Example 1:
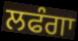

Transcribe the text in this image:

ਲਫੰਗਾ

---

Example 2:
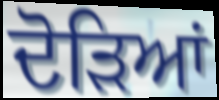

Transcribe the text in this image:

ਦੋੜਿਆਂ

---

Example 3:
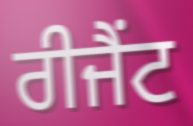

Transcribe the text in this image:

ਰੀਜੈਂਟ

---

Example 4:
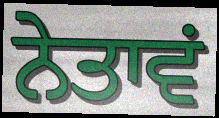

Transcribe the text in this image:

ਨੇਤਾਵਂ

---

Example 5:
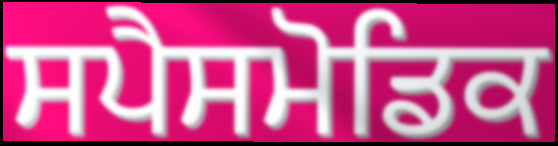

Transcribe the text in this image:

ਸਪੈਸਮੋਡਿਕ